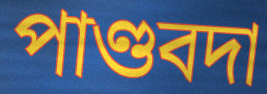
পাণ্ডবদা